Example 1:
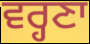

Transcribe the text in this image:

ਵਰ੍ਹਣਾ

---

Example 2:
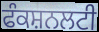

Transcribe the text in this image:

ਫੰਕਸ਼ਨਲਟੀ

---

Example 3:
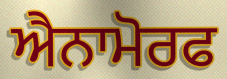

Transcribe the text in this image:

ਐਨਾਮੋਰਫ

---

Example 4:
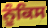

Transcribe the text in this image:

ਨੂੰਕਿਸ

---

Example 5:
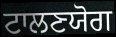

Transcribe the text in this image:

ਟਾਲਣਯੋਗ